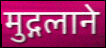
मुद्गलाने